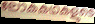
ലോകകഥകളുടെ